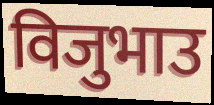
विजुभाउ